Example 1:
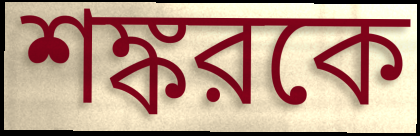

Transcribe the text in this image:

শঙ্করকে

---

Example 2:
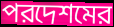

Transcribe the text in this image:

পরদেশমের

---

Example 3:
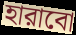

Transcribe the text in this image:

হারাবো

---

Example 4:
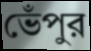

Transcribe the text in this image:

ভেঁপুর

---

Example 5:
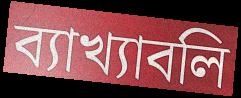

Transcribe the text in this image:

ব্যাখ্যাবলি